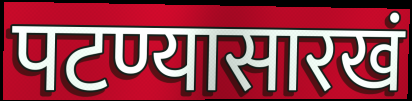
पटण्यासारखं